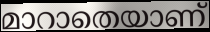
മാറാതെയാണ്